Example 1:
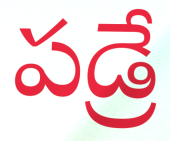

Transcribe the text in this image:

పడ్రే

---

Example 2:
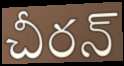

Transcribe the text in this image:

చీరన్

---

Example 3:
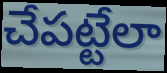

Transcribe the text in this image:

చేపట్టేలా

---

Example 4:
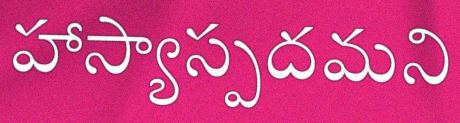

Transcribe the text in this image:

హాస్యాస్పదమని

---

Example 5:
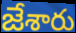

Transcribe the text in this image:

జేశారు